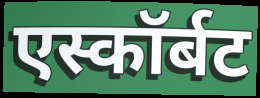
एस्कॉर्बट